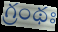
గ్రంథః